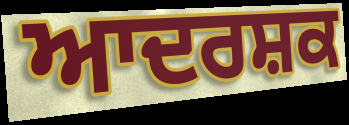
ਆਦਰਸ਼ਕ